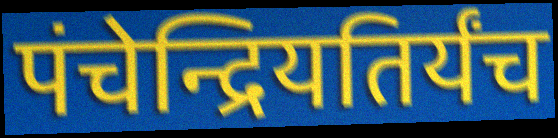
पंचेन्द्रियतिर्यंच